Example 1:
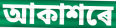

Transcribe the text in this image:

আকাশৰে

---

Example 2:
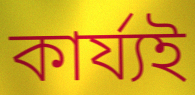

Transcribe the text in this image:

কাৰ্য্যই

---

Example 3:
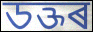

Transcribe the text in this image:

ডক্তৰ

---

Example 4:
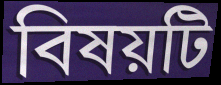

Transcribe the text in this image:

বিষয়টি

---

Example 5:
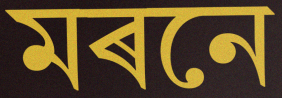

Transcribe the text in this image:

মৰনে